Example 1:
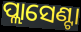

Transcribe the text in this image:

ପ୍ଲାସେଣ୍ଟା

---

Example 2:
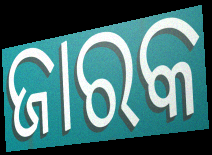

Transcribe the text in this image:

ଜାରକ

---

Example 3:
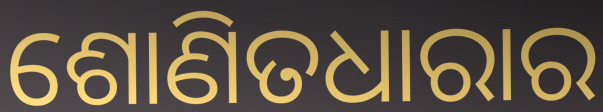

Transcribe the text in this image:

ଶୋଣିତଧାରାର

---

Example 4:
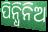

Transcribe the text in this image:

ପିନ୍ଧିନିଅ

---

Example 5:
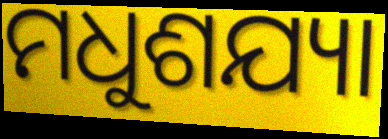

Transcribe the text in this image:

ମଧୁଶଯ୍ୟା